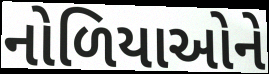
નોળિયાઓને